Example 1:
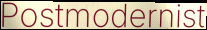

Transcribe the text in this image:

Postmodernist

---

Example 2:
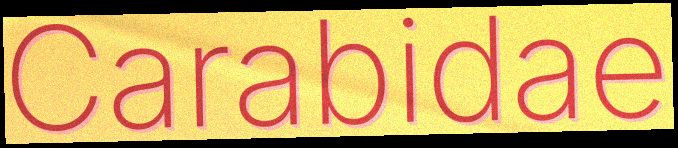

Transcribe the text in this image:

Carabidae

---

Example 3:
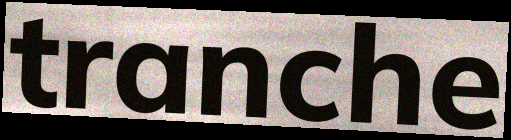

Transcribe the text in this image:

tranche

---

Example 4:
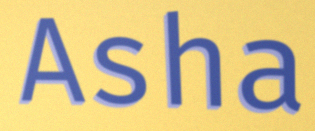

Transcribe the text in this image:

Asha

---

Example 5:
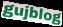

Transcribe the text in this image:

gujblog